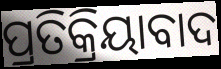
ପ୍ରତିକ୍ରିୟାବାଦ